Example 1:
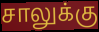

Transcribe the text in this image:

சாலுக்கு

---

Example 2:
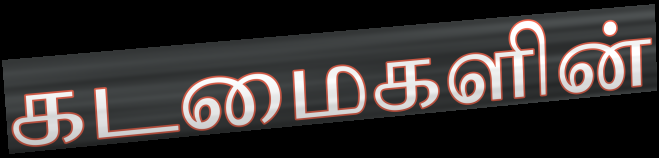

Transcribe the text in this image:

கடமைகளின்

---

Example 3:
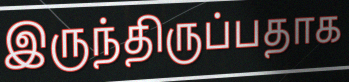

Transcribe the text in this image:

இருந்திருப்பதாக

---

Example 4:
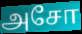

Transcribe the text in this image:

அசோ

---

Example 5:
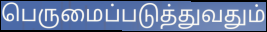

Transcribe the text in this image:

பெருமைப்படுத்துவதும்